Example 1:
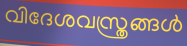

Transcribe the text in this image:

വിദേശവസ്ത്രങ്ങൾ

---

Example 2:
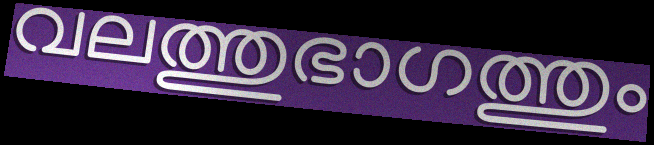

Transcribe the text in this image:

വലത്തുഭാഗത്തും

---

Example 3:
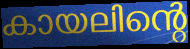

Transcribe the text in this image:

കായലിന്റെ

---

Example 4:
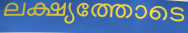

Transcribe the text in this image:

ലക്ഷ്യത്തോടെ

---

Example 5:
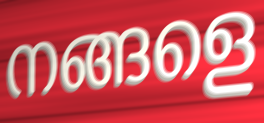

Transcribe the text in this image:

നങ്ങളെ